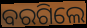
ବରଗିଲେ